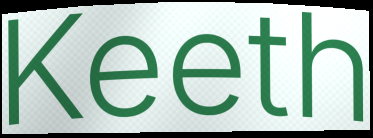
Keeth